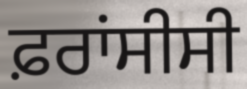
ਫ਼ਰਾਂਸੀਸੀ